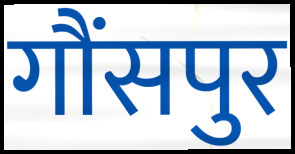
गौंसपुर